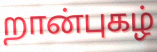
றான்புகழ்